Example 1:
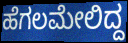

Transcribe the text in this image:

ಹೆಗಲಮೇಲಿದ್ದ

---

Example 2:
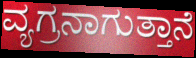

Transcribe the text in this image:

ವ್ಯಗ್ರನಾಗುತ್ತಾನೆ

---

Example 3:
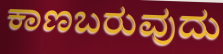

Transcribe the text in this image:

ಕಾಣಬರುವುದು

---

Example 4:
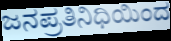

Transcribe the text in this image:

ಜನಪ್ರತಿನಿಧಿಯಿಂದ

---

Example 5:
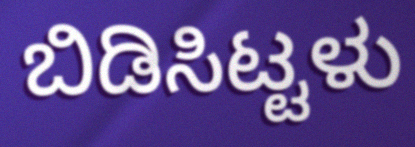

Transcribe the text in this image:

ಬಿಡಿಸಿಟ್ಟಳು